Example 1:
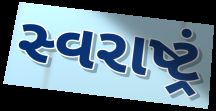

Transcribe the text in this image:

સ્વરાષ્ટ્રં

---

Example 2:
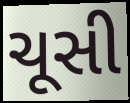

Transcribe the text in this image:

ચૂસી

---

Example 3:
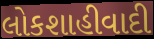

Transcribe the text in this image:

લોકશાહીવાદી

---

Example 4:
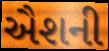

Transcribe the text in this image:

ઐશની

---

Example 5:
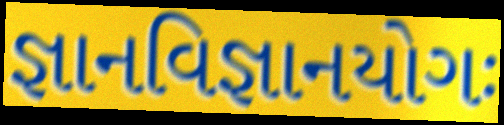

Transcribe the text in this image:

જ્ઞાનવિજ્ઞાનયોગઃ